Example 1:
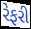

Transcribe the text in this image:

રેફરી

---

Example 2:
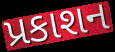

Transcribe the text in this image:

પ્રકાશન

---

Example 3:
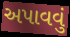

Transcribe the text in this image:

અપાવવું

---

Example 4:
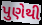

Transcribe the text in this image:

પુણેથી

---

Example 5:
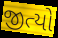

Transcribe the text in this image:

જીત્યો